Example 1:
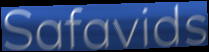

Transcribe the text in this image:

Safavids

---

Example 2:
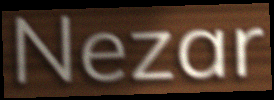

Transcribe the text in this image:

Nezar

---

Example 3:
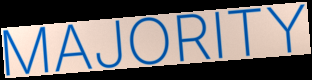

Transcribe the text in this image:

MAJORITY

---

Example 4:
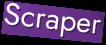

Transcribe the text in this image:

Scraper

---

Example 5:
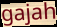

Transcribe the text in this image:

gajah